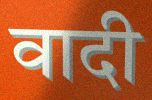
वादी